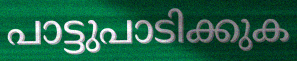
പാട്ടുപാടിക്കുക